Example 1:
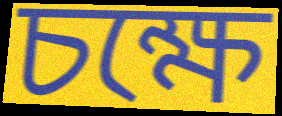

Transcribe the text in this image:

চক্ষে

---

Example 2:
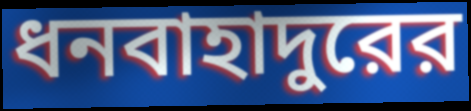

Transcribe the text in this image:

ধনবাহাদুরের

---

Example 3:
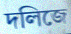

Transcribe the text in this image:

দলিজে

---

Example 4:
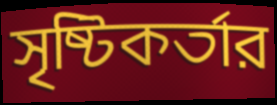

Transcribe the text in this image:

সৃষ্টিকর্তার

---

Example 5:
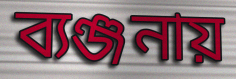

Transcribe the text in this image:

ব্যঞ্জনায়